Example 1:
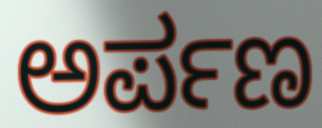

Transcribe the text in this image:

ಅರ್ಪಣ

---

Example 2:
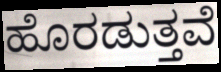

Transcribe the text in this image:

ಹೊರಡುತ್ತವೆ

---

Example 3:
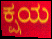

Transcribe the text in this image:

ಕ್ಷಯ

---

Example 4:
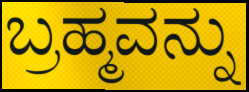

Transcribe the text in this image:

ಬ್ರಹ್ಮವನ್ನು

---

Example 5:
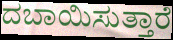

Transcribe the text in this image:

ದಬಾಯಿಸುತ್ತಾರೆ